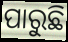
ପାରୁଛି